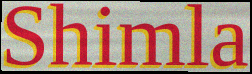
Shimla